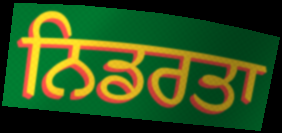
ਨਿਡਰਤਾ